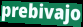
prebivajo